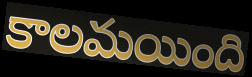
కాలమయింది